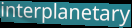
interplanetary